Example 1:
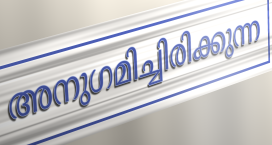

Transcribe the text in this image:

അനുഗമിച്ചിരിക്കുന്ന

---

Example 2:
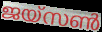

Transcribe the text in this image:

ജയ്സൺ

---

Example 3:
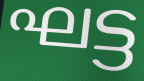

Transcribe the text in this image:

ഘട്ട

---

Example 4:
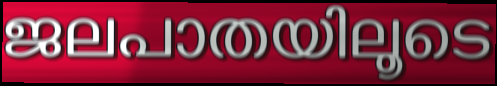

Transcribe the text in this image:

ജലപാതയിലൂടെ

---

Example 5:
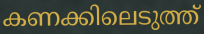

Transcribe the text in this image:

കണക്കിലെടുത്ത്